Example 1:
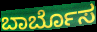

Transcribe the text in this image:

ಬಾರ್ಬೊಸ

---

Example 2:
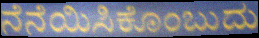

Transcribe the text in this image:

ನೆನೆಯಿಸಿಕೊಂಬುದು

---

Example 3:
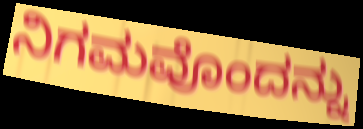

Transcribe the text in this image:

ನಿಗಮವೊಂದನ್ನು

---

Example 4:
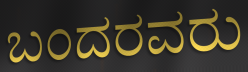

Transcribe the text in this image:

ಬಂದರವರು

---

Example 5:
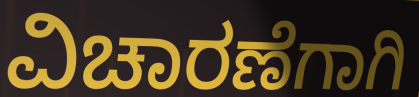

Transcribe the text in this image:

ವಿಚಾರಣೆಗಾಗಿ